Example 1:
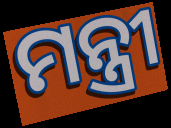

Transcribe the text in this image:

ମନ୍ତ୍ରୀ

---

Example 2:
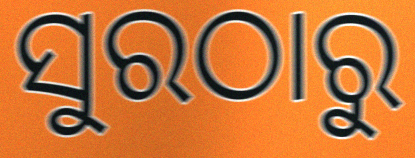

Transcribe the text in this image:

ସୁରଠାରୁ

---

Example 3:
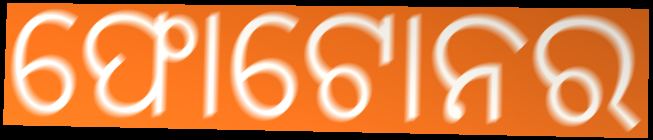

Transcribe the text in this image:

ଫୋଟୋନର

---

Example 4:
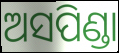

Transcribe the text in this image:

ଅସପିଣ୍ଡା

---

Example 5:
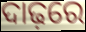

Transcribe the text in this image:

ଦାଢ଼ରେ